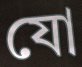
যো